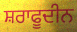
ਸ਼ਰਾਫੂਦੀਨ